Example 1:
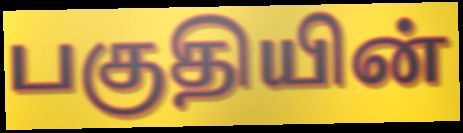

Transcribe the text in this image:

பகுதியின்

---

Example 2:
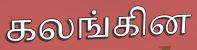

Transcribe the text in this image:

கலங்கின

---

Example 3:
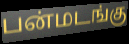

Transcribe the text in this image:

பன்மடங்கு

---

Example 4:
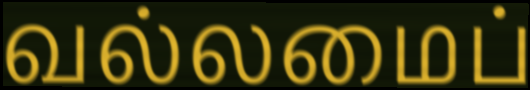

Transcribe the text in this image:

வல்லமைப்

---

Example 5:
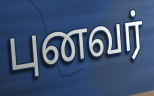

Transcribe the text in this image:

புனவர்